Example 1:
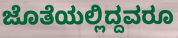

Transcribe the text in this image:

ಜೊತೆಯಲ್ಲಿದ್ದವರೂ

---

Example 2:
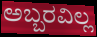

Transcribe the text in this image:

ಅಬ್ಬರವಿಲ್ಲ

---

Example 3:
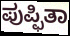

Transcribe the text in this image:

ಪುಪ್ಫಿತಾ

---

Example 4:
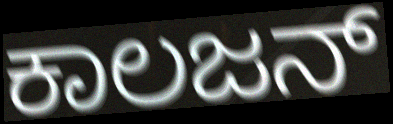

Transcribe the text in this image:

ಕಾಲಜನ್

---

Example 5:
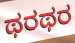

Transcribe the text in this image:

ಥರಥರ